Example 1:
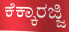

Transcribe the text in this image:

ಕೆಕ್ಕಾರಜ್ಜಿ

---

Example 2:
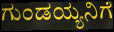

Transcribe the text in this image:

ಗುಂಡಯ್ಯನಿಗೆ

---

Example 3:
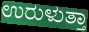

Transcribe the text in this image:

ಉರುಳುತ್ತಾ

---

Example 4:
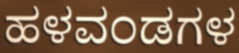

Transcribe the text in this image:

ಹಳವಂಡಗಳ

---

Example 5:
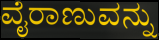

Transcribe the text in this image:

ವೈರಾಣುವನ್ನು